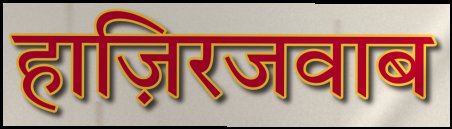
हाज़िरजवाब